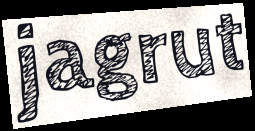
jagrut